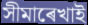
সীমাৰেখাই